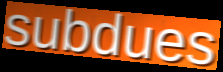
subdues